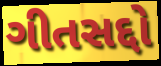
ગીતસદ્દો